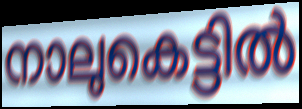
നാലുകെട്ടിൽ